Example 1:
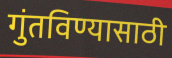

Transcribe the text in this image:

गुंतविण्यासाठी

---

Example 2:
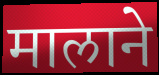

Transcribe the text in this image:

मालाने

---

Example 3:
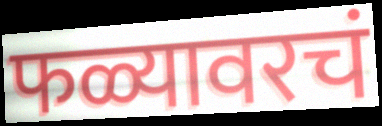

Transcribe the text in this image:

फळ्यावरचं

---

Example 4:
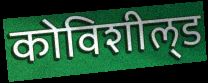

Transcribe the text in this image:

कोविशील्ड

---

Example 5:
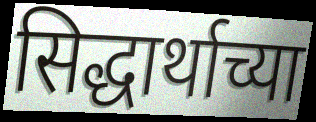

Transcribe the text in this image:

सिद्धार्थाच्या